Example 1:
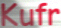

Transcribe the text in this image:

Kufr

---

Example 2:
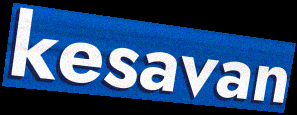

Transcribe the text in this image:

kesavan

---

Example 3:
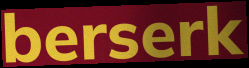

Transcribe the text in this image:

berserk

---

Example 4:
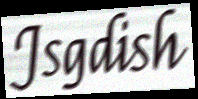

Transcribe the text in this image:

Jsgdish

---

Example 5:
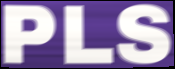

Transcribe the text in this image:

PLS